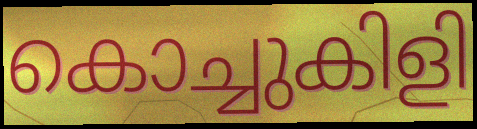
കൊച്ചുകിളി